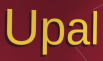
Upal